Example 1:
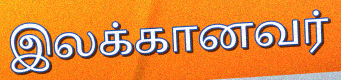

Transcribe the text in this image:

இலக்கானவர்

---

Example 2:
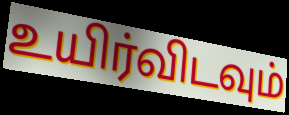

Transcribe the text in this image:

உயிர்விடவும்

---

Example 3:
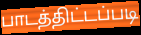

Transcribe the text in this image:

பாடத்திட்டப்படி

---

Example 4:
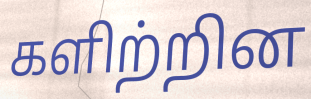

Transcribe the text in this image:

களிற்றின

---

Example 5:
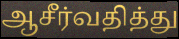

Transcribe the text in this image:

ஆசீர்வதித்து